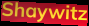
Shaywitz